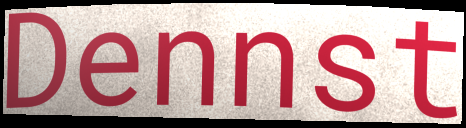
Dennst